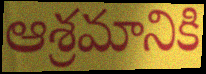
ఆశ్రమానికి